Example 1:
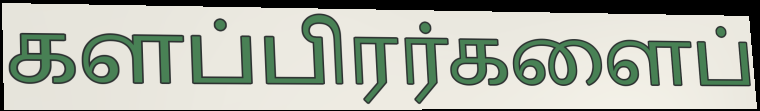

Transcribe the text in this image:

களப்பிரர்களைப்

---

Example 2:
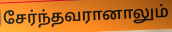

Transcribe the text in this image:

சேர்ந்தவரானாலும்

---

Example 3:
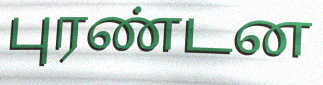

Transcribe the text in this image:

புரண்டன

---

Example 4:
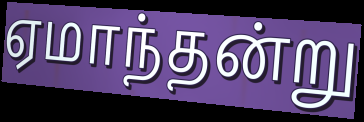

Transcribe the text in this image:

ஏமாந்தன்று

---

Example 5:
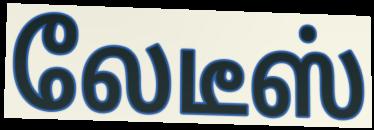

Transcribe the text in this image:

லேடீஸ்